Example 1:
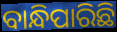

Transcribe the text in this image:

ବାନ୍ଧିପାରିଛି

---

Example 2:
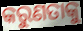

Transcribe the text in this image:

କରୁଣତାକୁ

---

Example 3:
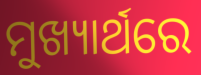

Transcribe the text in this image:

ମୁଖ୍ୟାର୍ଥରେ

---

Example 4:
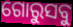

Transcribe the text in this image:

ଗୋରୁସବୁ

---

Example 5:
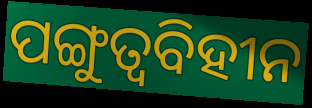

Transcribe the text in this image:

ପଙ୍ଗୁତ୍ୱବିହୀନ